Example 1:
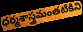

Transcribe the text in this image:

ధర్మశాస్త్రమంతటికిని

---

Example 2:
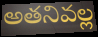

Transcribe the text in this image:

అతనివల్ల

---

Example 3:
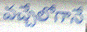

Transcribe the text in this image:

వచ్చేలోగానే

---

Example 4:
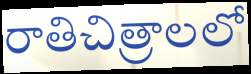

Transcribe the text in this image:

రాతిచిత్రాలలో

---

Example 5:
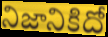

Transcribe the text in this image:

నిజానికిదో